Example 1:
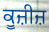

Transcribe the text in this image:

ਕੂਜ਼ੀਜ਼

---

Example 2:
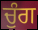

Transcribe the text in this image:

ਚੁੰਗ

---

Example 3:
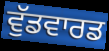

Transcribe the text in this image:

ਵੁੱਡਵਾਰਡ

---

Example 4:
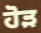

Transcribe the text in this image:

ਹੋੜ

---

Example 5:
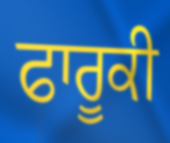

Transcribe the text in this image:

ਫਾਰੂਕੀ